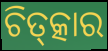
ଚିତ୍‌ତ୍କାର